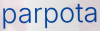
parpota